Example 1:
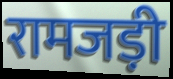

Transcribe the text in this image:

रामजड़ी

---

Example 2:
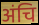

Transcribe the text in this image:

अंचि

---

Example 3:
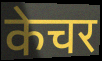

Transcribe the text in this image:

केचर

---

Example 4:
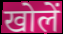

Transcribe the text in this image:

खोलें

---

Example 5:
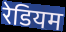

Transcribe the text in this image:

रेडियम